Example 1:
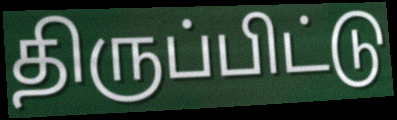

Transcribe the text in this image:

திருப்பிட்டு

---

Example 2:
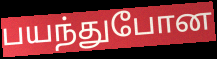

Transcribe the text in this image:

பயந்துபோன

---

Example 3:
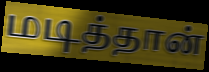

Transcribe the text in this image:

மடித்தான்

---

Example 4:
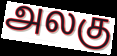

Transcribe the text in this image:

அலகு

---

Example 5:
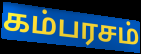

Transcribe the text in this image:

கம்பரசம்